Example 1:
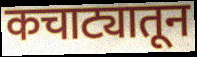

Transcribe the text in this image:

कचाट्यातून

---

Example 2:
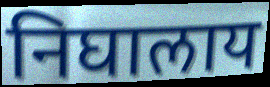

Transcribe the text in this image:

निघालाय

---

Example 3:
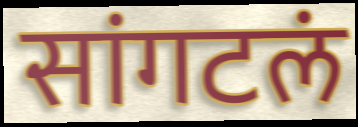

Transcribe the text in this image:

सांगटलं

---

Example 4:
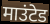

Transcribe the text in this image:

माउंटेड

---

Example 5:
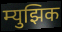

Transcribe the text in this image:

म्युझिक